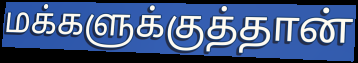
மக்களுக்குத்தான்